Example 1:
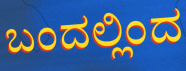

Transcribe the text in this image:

ಬಂದಲ್ಲಿಂದ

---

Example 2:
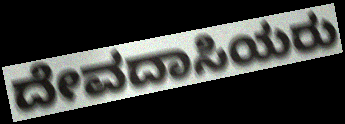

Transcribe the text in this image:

ದೇವದಾಸಿಯರು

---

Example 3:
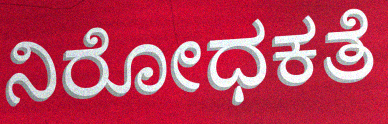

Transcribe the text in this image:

ನಿರೋಧಕತೆ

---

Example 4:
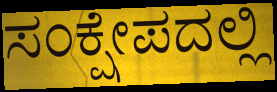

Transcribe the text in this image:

ಸಂಕ್ಷೇಪದಲ್ಲಿ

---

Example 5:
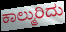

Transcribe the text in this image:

ಕಾಲ್ಮುರಿದು